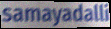
samayadalli